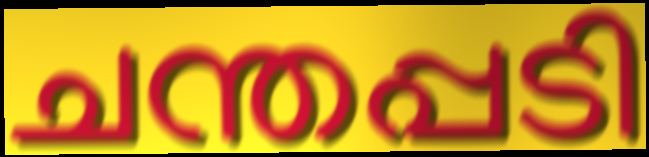
ചന്തപ്പടി